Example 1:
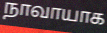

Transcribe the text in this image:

நாவாயாக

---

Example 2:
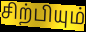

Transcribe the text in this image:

சிற்பியும்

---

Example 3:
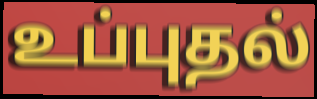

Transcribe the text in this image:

உப்புதல்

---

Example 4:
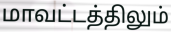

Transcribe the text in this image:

மாவட்டத்திலும்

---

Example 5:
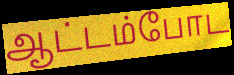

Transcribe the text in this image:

ஆட்டம்போட